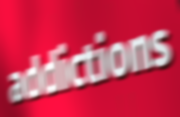
addictions